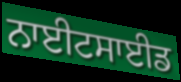
ਨਾਈਟਸਾਈਡ